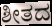
ಶೀತದ